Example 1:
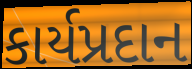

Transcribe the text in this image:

કાર્યપ્રદાન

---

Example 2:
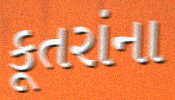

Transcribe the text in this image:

કૂતરાંના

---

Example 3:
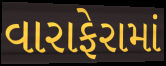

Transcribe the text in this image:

વારાફેરામાં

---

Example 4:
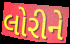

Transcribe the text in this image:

લોરીને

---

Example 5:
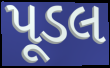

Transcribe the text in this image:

પૂડલ